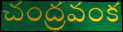
చంద్రవంక